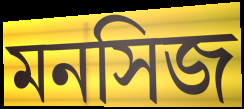
মনসিজ